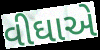
વીઘાએ